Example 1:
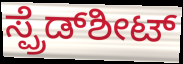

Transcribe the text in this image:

ಸ್ಪ್ರೆಡ್‌ಶೀಟ್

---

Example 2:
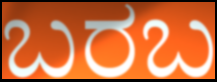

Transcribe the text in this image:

ಬರಬ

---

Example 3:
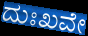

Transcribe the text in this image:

ದುಃಖವೇ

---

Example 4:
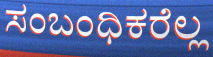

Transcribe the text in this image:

ಸಂಬಂಧಿಕರೆಲ್ಲ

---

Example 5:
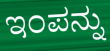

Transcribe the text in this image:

ಇಂಪನ್ನು